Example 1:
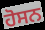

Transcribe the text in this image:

ਹੋਸਨ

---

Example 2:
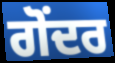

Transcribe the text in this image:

ਗੋਂਦਰ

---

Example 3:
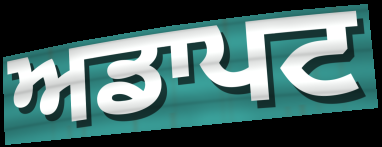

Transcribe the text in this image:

ਅਡਾਪਟ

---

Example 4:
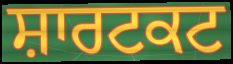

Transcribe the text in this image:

ਸ਼ਾਰਟਕਟ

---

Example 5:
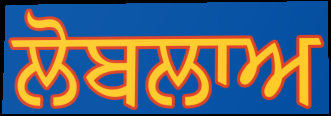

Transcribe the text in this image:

ਲੋਬਲਾਅ